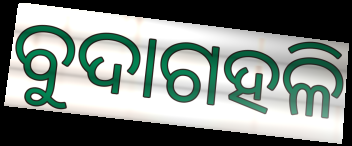
ବୁଦାଗହଳି